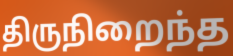
திருநிறைந்த